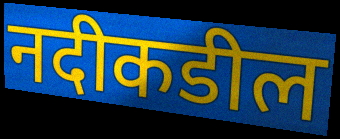
नदीकडील